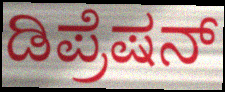
ಡಿಪ್ರೆಷನ್